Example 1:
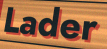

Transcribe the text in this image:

Lader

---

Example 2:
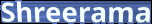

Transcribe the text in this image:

Shreerama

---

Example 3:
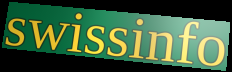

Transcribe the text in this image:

swissinfo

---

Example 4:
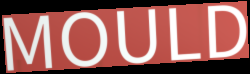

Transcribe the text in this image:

MOULD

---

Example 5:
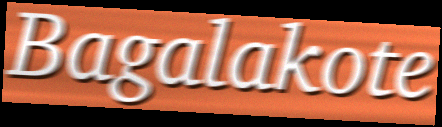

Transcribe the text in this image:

Bagalakote